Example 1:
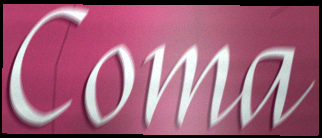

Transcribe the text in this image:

Coma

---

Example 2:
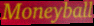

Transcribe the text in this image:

Moneyball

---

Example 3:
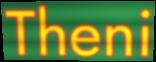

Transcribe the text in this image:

Theni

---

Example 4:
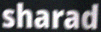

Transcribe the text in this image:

sharad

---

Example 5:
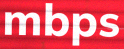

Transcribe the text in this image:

mbps